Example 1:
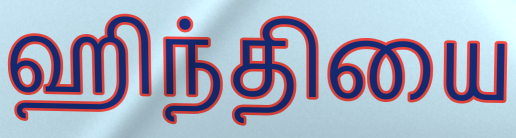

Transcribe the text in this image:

ஹிந்தியை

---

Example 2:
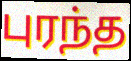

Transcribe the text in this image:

புரந்த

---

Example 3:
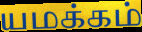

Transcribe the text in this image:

யமக்கம்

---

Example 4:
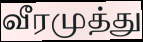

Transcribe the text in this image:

வீரமுத்து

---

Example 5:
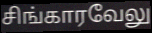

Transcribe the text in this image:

சிங்காரவேலு